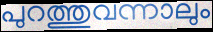
പുറത്തുവന്നാലും